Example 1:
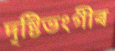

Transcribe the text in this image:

দৃষ্টিভংগীৰ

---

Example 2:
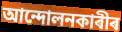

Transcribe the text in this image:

আন্দোলনকাৰীৰ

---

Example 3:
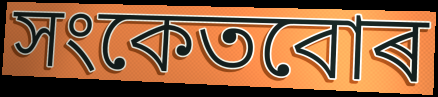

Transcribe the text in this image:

সংকেতবোৰ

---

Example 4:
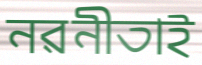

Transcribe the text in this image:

নৱনীতাই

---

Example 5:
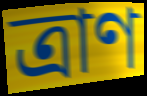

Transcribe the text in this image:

ত্ৰাণ